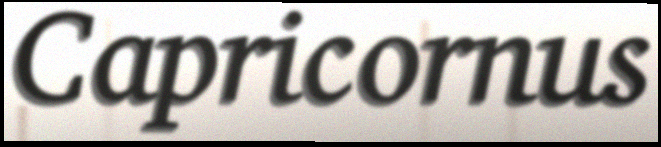
Capricornus